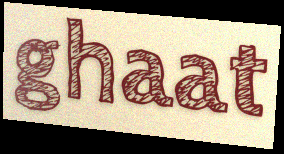
ghaat